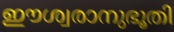
ഈശ്വരാനുഭൂതി